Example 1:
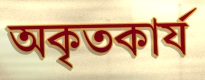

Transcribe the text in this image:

অকৃতকার্য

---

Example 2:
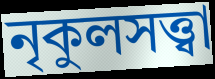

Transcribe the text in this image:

নৃকুলসত্ত্বা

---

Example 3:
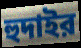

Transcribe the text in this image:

হুদাইর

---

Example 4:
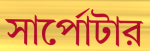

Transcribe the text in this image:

সার্পোটার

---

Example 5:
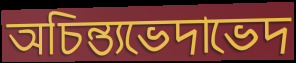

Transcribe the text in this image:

অচিন্ত্যভেদাভেদ